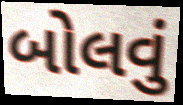
બોલવું